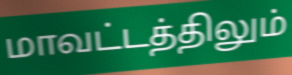
மாவட்டத்திலும்